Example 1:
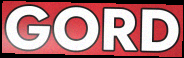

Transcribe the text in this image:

GORD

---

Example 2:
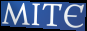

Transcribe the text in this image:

MITE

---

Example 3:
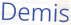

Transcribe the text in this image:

Demis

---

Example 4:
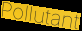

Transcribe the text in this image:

Pollutant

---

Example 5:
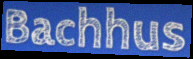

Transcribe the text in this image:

Bachhus